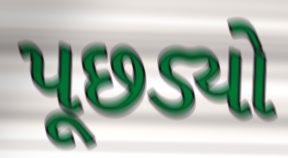
પૂછડ્યો